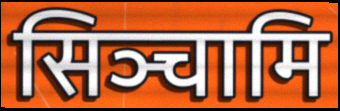
सिञ्चामि